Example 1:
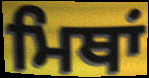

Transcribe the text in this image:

ਮਿਥਾਂ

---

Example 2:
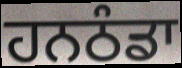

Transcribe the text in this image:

ਹਨਠੰਡਾ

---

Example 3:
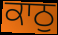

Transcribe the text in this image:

ਕਾਠੁ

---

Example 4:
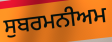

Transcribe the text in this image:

ਸੁਬਰਮਨੀਅਮ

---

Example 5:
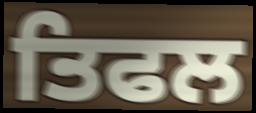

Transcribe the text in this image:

ਤਿਫਲ